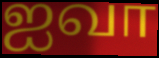
ஐவா